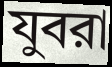
যুবরা